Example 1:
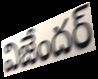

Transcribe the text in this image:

విజేందర్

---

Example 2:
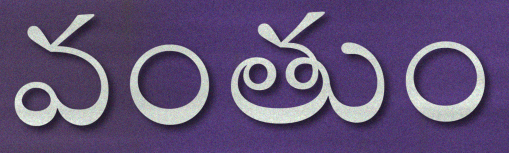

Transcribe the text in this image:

వంతుం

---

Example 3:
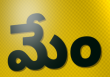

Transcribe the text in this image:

మేం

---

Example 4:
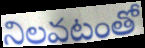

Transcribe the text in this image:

నిలవటంతో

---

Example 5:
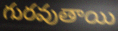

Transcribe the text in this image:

గురవుతాయి